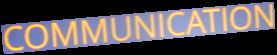
COMMUNICATION